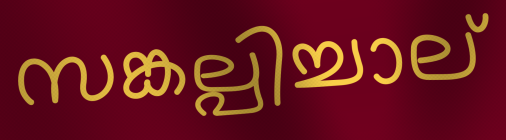
സങ്കല്പിച്ചാല്